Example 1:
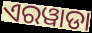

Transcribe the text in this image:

ଏରୱାଡା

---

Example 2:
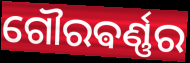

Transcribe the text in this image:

ଗୌରଵର୍ଣ୍ଣର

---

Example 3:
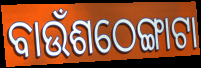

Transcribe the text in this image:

ବାଉଁଶଠେଙ୍ଗାଟା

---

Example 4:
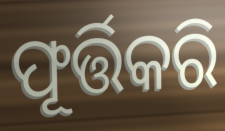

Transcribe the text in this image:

ଫୂର୍ତ୍ତିକରି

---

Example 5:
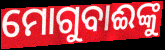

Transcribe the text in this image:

ମୋଗୁବାଈଙ୍କୁ